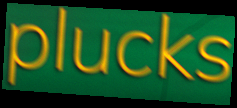
plucks